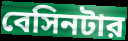
বেসিনটার